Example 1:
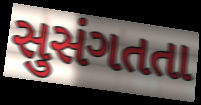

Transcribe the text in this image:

સુસંગતતા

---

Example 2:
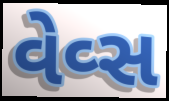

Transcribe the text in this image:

વેવ્સ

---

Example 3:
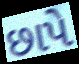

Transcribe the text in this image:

છાપે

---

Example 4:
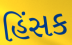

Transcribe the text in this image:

હિંસક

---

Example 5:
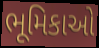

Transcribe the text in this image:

ભૂમિકાઓ